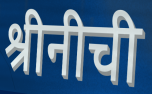
श्रीनीची